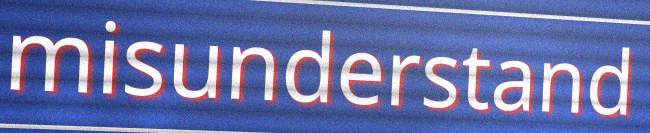
misunderstand